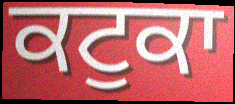
ਕਟੁਕਾ